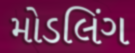
મોડલિંગ